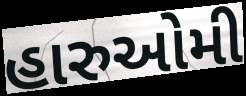
હારુઓમી